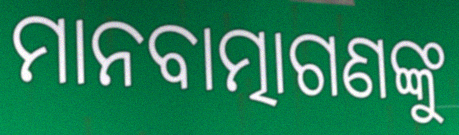
ମାନବାତ୍ମାଗଣଙ୍କୁ